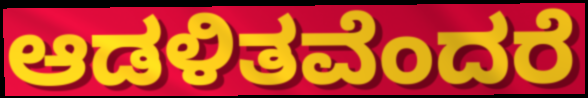
ಆಡಳಿತವೆಂದರೆ